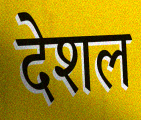
देशल